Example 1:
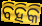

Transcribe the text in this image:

ବିହିକି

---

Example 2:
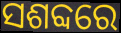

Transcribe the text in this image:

ସଶବ୍ଦରେ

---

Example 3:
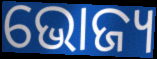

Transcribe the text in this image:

ଭୋଜ୍ୟ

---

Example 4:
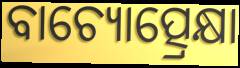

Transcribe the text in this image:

ବାଚ୍ୟୋତ୍ପ୍ରେକ୍ଷା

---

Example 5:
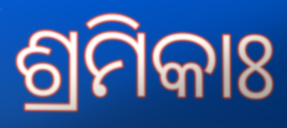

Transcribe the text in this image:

ଶ୍ରମିକାଃ